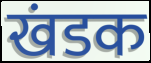
खंडक